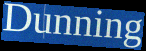
Dunning